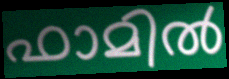
ഫാമിൽ